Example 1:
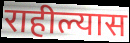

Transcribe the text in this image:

राहील्यास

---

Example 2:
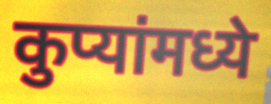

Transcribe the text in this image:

कुप्यांमध्ये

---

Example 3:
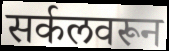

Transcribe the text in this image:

सर्कलवरून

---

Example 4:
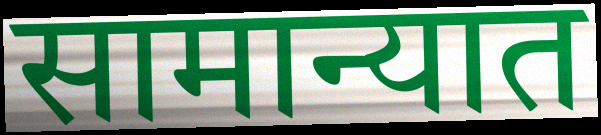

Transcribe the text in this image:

सामान्यात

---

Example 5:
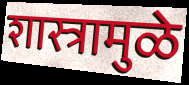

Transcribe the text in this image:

शास्त्रामुळे